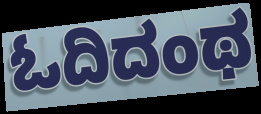
ಓದಿದಂಥ